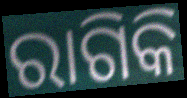
ରାଗିକି